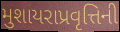
મુશાયરાપ્રવૃત્તિની